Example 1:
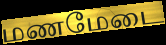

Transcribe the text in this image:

மணமேடை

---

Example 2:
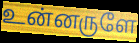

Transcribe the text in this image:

உன்னருளே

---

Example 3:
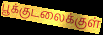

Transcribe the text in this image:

பூக்குடலைக்குள்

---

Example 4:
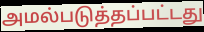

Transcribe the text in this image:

அமல்படுத்தப்பட்டது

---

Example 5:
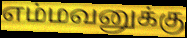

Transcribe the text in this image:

எம்மவனுக்கு